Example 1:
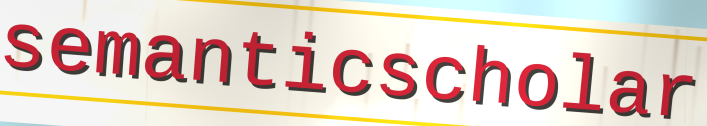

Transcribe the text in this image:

semanticscholar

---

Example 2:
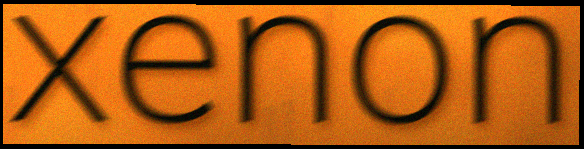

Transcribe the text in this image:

xenon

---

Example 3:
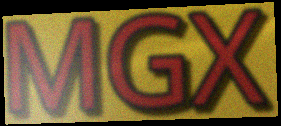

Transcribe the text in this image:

MGX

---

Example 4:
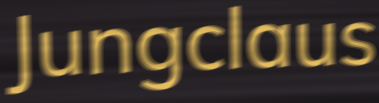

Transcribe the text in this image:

Jungclaus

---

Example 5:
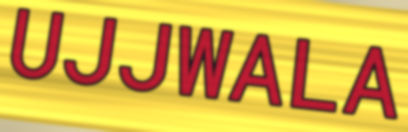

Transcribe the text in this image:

UJJWALA